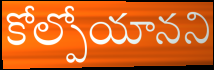
కోల్పోయానని